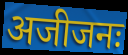
अजीजनः